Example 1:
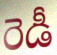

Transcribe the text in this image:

రెడీ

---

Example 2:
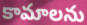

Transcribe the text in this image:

కామాలను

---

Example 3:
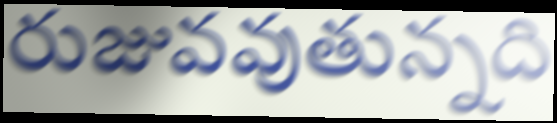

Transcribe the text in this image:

రుజువవుతున్నది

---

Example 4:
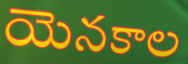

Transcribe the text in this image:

యెనకాల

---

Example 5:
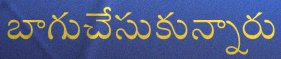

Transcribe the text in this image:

బాగుచేసుకున్నారు